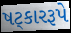
ષટ્કારરૂપે